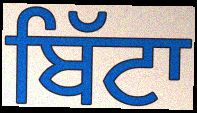
ਬਿੱਟਾ